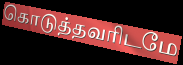
கொடுத்தவரிடமே